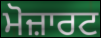
ਮੋਜ਼ਾਰਟ